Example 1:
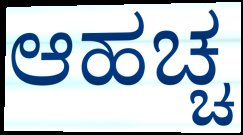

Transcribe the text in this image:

ಆಹಚ್ಚ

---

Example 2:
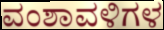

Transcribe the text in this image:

ವಂಶಾವಳಿಗಳ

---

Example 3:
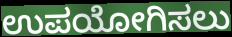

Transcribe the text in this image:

ಉಪಯೋಗಿಸಲು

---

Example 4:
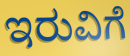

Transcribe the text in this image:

ಇರುವಿಗೆ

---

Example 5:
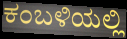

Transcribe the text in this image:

ಕಂಬಳಿಯಲ್ಲಿ